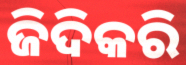
ଜିଦିକରି